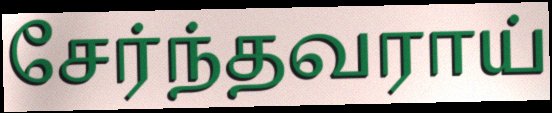
சேர்ந்தவராய்